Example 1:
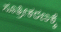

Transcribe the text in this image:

ಸೂತ್ರೀಕರಣಕ್ಕೆ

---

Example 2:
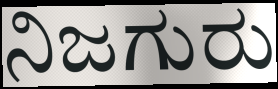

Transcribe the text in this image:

ನಿಜಗುರು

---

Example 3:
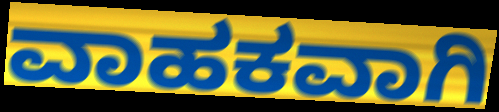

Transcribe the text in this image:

ವಾಹಕವಾಗಿ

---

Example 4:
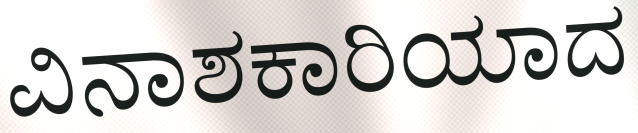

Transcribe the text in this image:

ವಿನಾಶಕಾರಿಯಾದ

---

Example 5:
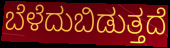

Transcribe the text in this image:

ಬೆಳೆದುಬಿಡುತ್ತದೆ